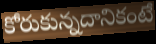
కోరుకున్నదానికంటే